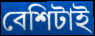
বেশিটাই